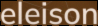
eleison